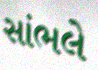
સાંભલે